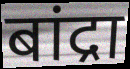
बांद्रा